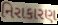
નિરાકારણ